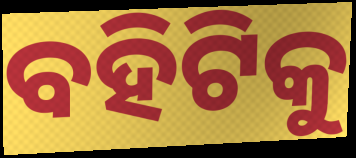
ବହିଟିକୁ